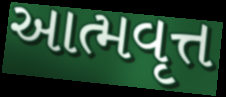
આત્મવૃત્ત